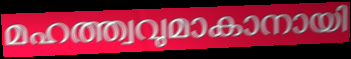
മഹത്ത്വവുമാകാനായി